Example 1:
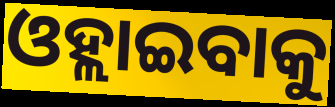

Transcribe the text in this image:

ଓହ୍ଲାଇବାକୁ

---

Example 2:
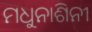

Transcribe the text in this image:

ମଧୁନାଶିନୀ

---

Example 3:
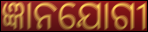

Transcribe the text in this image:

ଜ୍ଞାନଯୋଗୀ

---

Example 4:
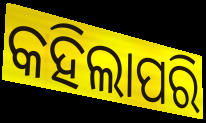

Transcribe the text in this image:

କହିଲାପରି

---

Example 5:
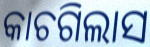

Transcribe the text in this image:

କାଚଗିଲାସ